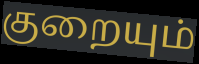
குறையும்